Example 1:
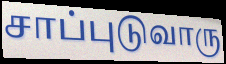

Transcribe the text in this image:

சாப்புடுவாரு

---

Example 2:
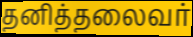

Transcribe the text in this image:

தனித்தலைவர்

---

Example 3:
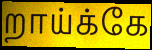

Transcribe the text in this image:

றாய்க்கே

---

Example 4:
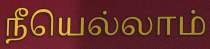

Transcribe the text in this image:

நீயெல்லாம்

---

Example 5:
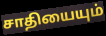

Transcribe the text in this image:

சாதியையும்